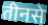
तीनसे